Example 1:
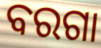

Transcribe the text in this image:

ବରଗା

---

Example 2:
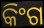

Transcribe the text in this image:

କିଂଗ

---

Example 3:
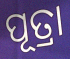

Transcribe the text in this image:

ପୂତ୍ରା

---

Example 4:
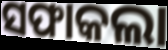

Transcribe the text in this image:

ସଫାକଲା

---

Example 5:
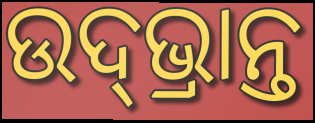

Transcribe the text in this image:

ଉଦ୍‌ଭ୍ରାନ୍ତ